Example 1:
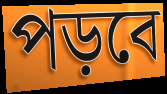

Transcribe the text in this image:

পড়বে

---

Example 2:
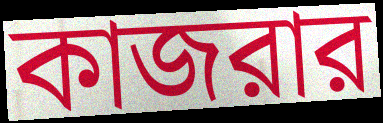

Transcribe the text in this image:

কাজরার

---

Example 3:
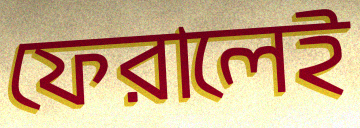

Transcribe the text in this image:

ফেরালেই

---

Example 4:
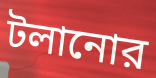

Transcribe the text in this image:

টলানোর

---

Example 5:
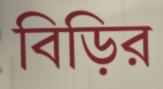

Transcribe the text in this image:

বিড়ির